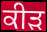
ਕੀੜ